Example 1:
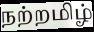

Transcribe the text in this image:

நற்றமிழ்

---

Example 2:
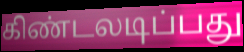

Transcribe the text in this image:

கிண்டலடிப்பது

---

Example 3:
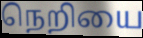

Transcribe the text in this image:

நெறியை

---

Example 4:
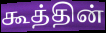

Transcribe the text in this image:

கூத்தின்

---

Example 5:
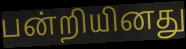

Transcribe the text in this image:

பன்றியினது